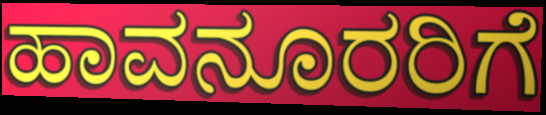
ಹಾವನೂರರಿಗೆ